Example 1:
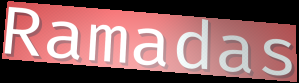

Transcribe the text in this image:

Ramadas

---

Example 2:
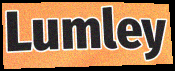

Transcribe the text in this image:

Lumley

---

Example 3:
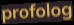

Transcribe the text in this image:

profolog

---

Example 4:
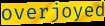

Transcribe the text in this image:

overjoyed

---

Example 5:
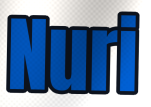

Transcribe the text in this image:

Nuri